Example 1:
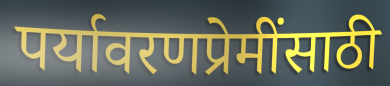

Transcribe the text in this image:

पर्यावरणप्रेमींसाठी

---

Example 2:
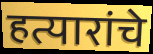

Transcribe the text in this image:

हत्यारांचे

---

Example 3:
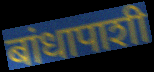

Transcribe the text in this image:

बांधापाशी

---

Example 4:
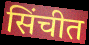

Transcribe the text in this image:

सिंचीत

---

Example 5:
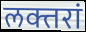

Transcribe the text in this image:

लक्तरां